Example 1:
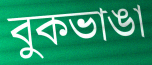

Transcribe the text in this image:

বুকভাঙা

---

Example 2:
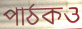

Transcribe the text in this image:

পাঠকও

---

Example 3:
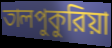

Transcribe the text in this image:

তালপুকুরিয়া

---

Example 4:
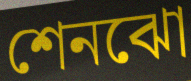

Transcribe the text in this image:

শেনঝো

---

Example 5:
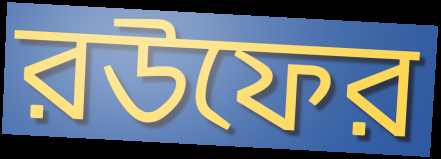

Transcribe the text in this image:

রউফের